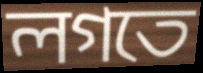
লগতে